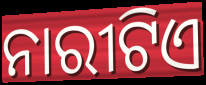
ନାରୀଟିଏ